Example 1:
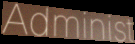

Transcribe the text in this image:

Administ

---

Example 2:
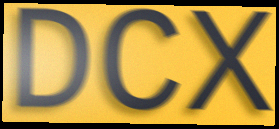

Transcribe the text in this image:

DCX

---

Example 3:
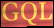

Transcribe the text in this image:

GQL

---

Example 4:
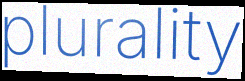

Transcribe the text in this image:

plurality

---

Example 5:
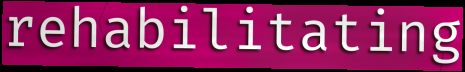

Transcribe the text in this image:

rehabilitating